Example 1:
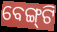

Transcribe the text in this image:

ବେଙ୍ଗ୍‌ଟି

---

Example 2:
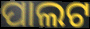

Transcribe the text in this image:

ପାଲଟ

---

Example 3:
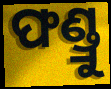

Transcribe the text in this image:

ଫଣ୍ଡ୍ରୁ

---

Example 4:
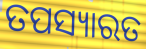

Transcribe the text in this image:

ତପସ୍ୟାରତ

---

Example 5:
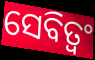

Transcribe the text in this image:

ସେବିତ୍ୱଂ